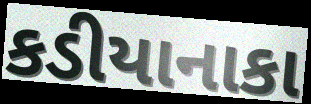
કડીયાનાકા